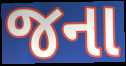
જના